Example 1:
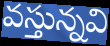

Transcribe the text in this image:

వస్తున్నవి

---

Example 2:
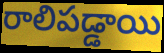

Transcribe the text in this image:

రాలిపడ్డాయి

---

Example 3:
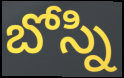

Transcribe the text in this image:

బోస్ని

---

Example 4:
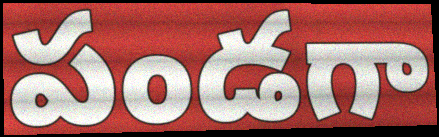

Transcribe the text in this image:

పండగా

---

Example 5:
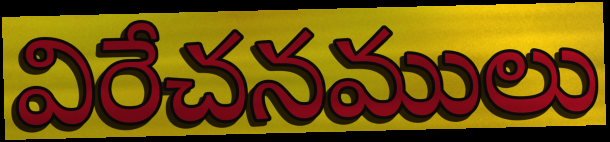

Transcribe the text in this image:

విరేచనములు